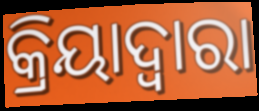
କ୍ରିୟାଦ୍ଵାରା